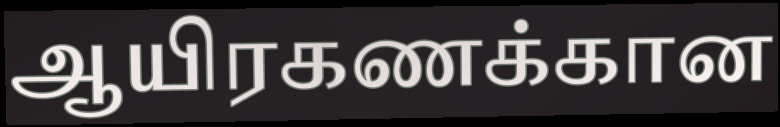
ஆயிரகணக்கான